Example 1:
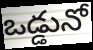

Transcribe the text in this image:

ఒడ్డునో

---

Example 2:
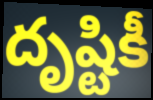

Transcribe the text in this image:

దృష్టికీ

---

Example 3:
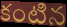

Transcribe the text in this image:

కంటిన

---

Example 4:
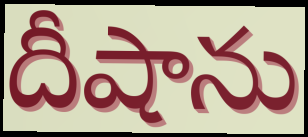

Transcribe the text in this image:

దీషాను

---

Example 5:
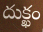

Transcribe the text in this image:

దుక్ఖం